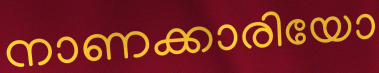
നാണക്കാരിയോ